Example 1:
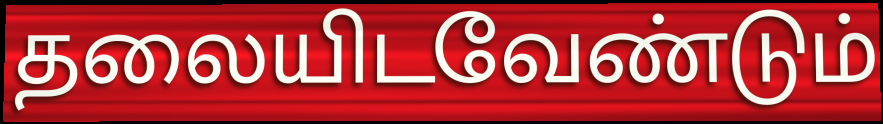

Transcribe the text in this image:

தலையிடவேண்டும்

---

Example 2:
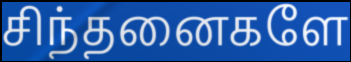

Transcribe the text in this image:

சிந்தனைகளே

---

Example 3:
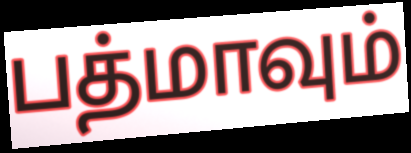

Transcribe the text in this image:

பத்மாவும்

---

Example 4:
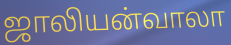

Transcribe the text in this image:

ஜாலியன்வாலா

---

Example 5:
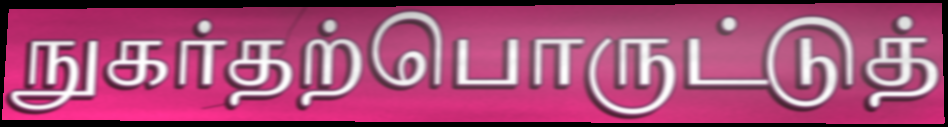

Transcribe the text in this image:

நுகர்தற்பொருட்டுத்